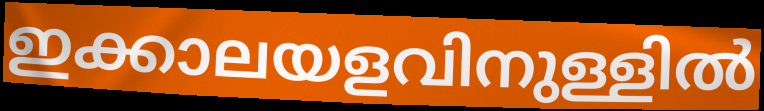
ഇക്കാലയളവിനുള്ളിൽ